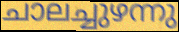
ചാലച്ചുഴന്നു